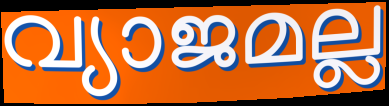
വ്യാജമല്ല